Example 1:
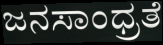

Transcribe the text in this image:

ಜನಸಾಂಧ್ರತೆ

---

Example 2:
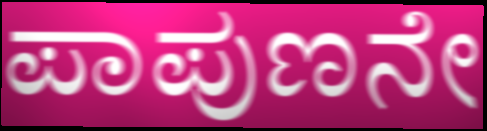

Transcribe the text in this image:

ಪಾಪುಣನೇ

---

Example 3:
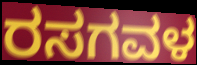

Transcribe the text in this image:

ರಸಗವಳ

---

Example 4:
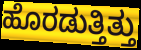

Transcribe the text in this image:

ಹೊರಡುತ್ತಿತ್ತು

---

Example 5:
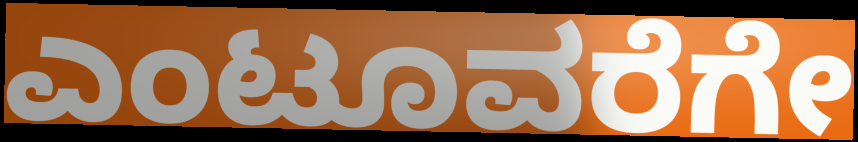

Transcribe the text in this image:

ಎಂಟೂವರೆಗೇ